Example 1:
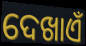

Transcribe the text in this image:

ଦେଖାଏଁ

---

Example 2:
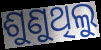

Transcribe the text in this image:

ଶୁଣୁଥିଲୁ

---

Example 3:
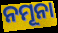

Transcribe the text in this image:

ନମୂନା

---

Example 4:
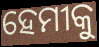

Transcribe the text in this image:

ହେମୀକୁ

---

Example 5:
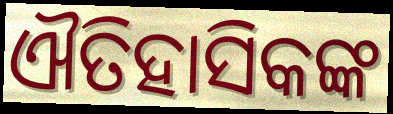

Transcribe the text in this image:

ଐତିହାସିକଙ୍କ